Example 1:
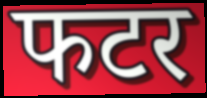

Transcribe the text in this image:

फटर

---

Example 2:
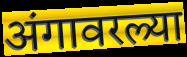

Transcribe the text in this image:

अंगावरल्या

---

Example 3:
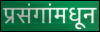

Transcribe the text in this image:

प्रसंगांमधून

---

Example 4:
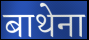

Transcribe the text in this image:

बाथेना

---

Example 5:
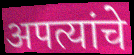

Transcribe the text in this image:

अपत्यांचे